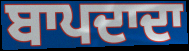
ਬਾਪਦਾਦਾ